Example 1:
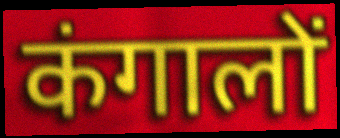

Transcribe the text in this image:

कंगालों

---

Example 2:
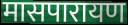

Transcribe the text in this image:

मासपारायण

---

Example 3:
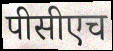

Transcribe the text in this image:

पीसीएच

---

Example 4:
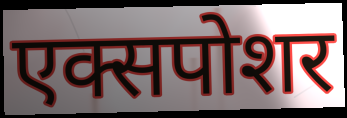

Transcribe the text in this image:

एक्सपोशर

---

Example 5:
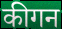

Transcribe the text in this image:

कीगन